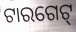
ଟାରଗେଟ୍